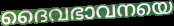
ദൈവഭാവനയെ